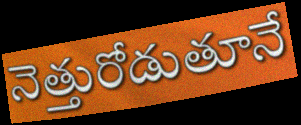
నెత్తురోడుతూనే